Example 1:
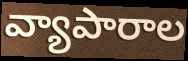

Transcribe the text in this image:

వ్యాపారాల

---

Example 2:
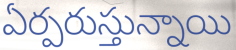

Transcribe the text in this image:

ఏర్పరుస్తున్నాయి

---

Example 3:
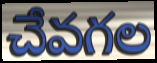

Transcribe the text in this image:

చేవగల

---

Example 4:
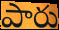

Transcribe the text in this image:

పారు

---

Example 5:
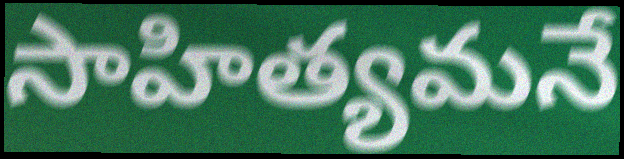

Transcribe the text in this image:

సాహిత్యమనే